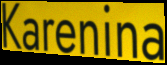
Karenina